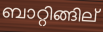
ബാറ്റിങ്ങില്